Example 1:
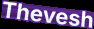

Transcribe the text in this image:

Thevesh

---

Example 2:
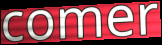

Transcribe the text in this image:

comer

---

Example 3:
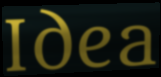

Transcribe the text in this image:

Idea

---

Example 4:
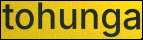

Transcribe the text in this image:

tohunga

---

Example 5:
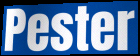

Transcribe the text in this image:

Pester